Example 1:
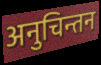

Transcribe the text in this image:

अनुचिन्तन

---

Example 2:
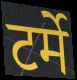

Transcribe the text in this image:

टर्मे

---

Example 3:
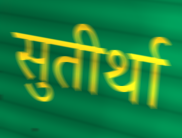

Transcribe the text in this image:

सुतीर्था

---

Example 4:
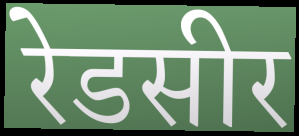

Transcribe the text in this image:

रेडसीर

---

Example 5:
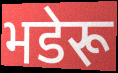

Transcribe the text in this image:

भडेरू